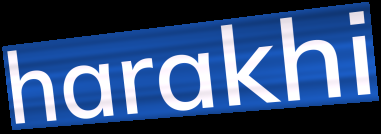
harakhi